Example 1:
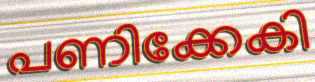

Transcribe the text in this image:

പണിക്കേകി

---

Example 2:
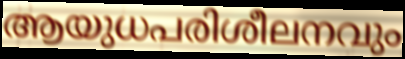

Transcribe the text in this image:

ആയുധപരിശീലനവും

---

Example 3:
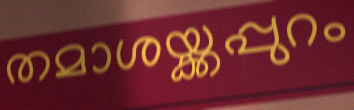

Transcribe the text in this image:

തമാശയ്ക്കപ്പുറം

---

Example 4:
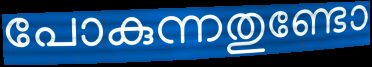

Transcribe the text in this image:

പോകുന്നതുണ്ടോ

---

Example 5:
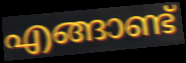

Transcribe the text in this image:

എങ്ങാണ്ട്